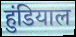
हुंडियाल